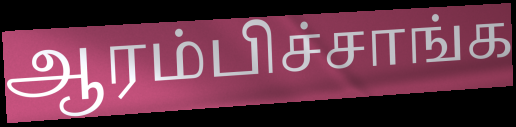
ஆரம்பிச்சாங்க